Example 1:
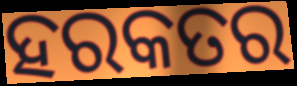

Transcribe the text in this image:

ହରକତର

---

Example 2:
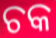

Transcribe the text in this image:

ଚକ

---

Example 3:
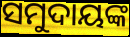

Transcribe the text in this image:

ସମୁଦାୟଙ୍କ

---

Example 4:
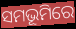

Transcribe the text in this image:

ସମଭୂମିରେ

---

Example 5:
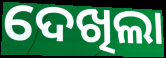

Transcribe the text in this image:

ଦେଖିଲା